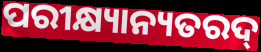
ପରୀକ୍ଷ୍ୟାନ୍ୟତରଦ୍